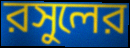
রসুলের